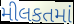
મીલકતમાં